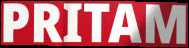
PRITAM